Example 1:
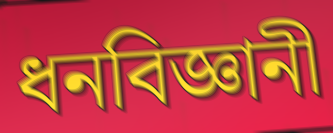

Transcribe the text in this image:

ধনবিজ্ঞানী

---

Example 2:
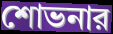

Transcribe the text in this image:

শোভনার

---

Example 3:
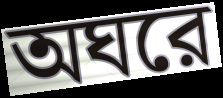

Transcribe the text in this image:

অঘরে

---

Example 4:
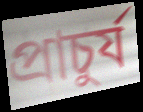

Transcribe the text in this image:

প্রাচুর্য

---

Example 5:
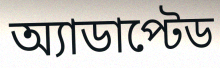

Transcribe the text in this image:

অ্যাডাপ্টেড